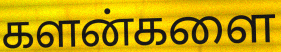
களன்களை